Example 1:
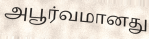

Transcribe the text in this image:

அபூர்வமானது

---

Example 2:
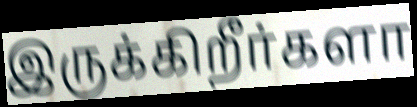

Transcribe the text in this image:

இருக்கிறீர்களா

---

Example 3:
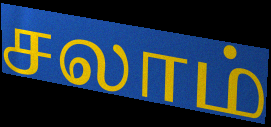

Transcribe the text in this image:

சலாம்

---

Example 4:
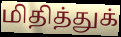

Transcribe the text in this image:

மிதித்துக்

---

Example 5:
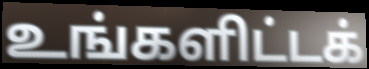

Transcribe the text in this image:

உங்களிட்டக்